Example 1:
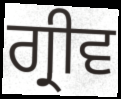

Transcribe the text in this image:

ਗ੍ਰੀਵ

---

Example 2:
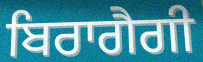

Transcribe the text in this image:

ਬਿਰਾਗੈਗੀ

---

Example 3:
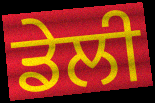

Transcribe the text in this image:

ਡੇਲੀ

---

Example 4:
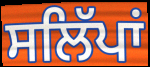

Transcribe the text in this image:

ਸਲਿੱਪਾਂ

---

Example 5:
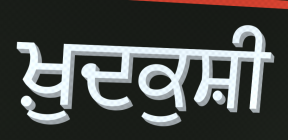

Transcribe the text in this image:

ਖ਼ੁਦਕੁਸ਼ੀ